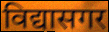
विद्यासगर